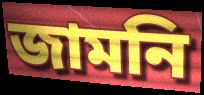
জামনি